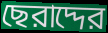
ছেরাদ্দের